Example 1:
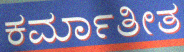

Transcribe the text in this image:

ಕರ್ಮಾತೀತ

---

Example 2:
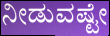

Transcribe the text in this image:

ನೀಡುವಷ್ಟೇ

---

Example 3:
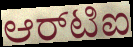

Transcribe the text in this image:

ಆರ್‌ಟಿಐ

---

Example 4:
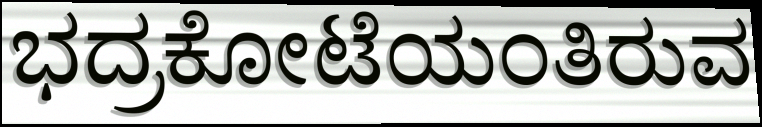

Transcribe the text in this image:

ಭದ್ರಕೋಟೆಯಂತಿರುವ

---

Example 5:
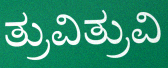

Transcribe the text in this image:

ತ್ರುವಿತ್ರುವಿ